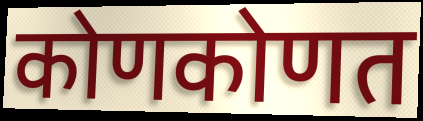
कोणकोणत